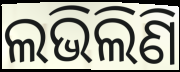
ଲଭିଲିଣି